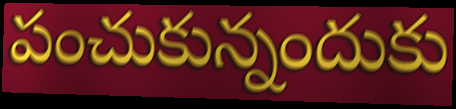
పంచుకున్నందుకు